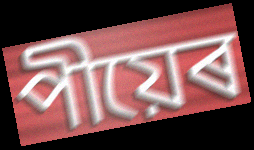
পীয়েৰ